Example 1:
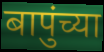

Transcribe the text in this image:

बापुंच्या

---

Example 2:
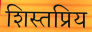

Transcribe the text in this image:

शिस्तप्रिय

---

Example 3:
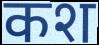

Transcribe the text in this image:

कश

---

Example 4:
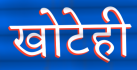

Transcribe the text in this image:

खोटेही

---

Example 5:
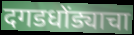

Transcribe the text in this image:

दगडधोंड्याचा